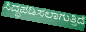
ಸಿದ್ಧಪಡಿಸಲಾಗುತ್ತಿದೆ